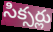
సిక్సర్లు